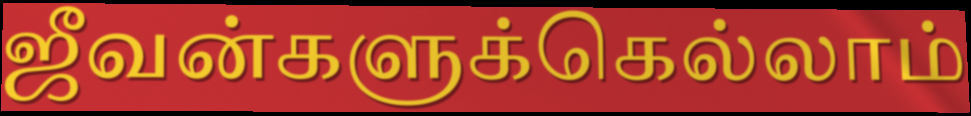
ஜீவன்களுக்கெல்லாம்